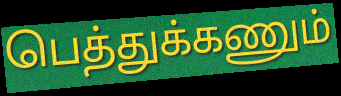
பெத்துக்கணும்